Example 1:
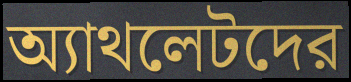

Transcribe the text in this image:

অ্যাথলেটদের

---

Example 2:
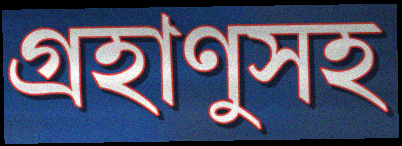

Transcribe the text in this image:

গ্রহাণুসহ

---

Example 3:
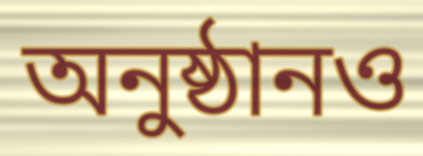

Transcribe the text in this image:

অনুষ্ঠানও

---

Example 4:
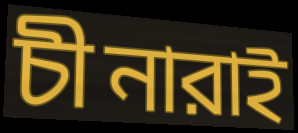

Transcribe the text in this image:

চীনারাই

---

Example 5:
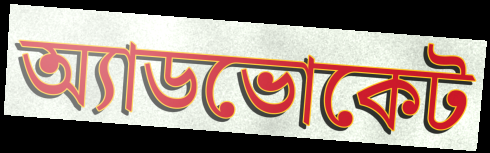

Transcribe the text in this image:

অ্যাডভোকেট